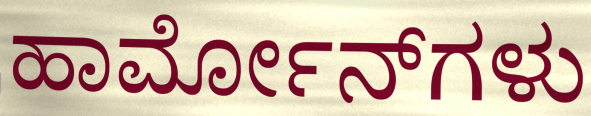
ಹಾರ್ಮೋನ್‌ಗಳು